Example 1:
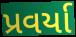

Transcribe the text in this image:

પ્રવર્યા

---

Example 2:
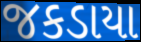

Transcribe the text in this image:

જકડાયા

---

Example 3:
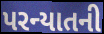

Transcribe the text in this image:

પરન્યાતની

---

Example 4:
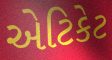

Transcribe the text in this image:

એટિકેટ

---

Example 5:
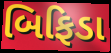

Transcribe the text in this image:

બિફિડા